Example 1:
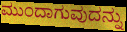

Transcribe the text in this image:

ಮುಂದಾಗುವುದನ್ನು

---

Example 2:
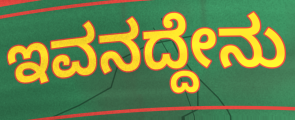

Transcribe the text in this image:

ಇವನದ್ದೇನು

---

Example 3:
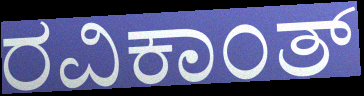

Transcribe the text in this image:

ರವಿಕಾಂತ್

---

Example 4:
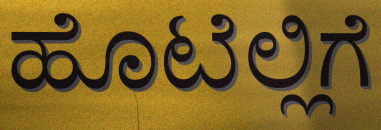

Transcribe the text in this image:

ಹೊಟೆಲ್ಲಿಗೆ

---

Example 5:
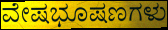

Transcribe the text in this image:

ವೇಷಭೂಷಣಗಳು